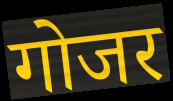
गोजर